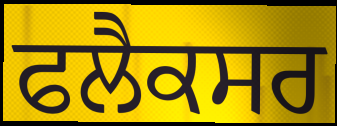
ਫਲੈਕਸਰ